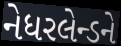
નેધરલેન્ડને